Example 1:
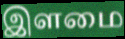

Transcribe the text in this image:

இளமை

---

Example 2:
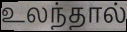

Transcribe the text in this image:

உலந்தால்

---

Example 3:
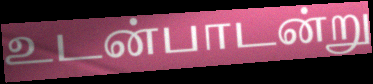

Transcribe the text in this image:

உடன்பாடன்று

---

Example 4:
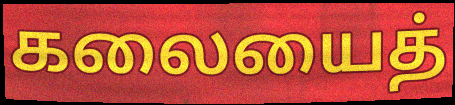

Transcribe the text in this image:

கலையைத்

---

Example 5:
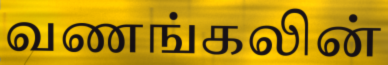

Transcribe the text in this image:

வணங்கலின்